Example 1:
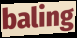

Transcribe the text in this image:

baling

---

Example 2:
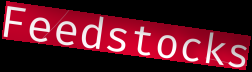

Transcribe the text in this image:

Feedstocks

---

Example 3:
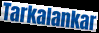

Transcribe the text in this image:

Tarkalankar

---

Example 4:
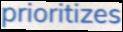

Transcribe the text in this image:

prioritizes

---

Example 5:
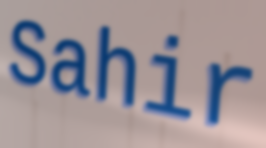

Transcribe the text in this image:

Sahir